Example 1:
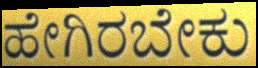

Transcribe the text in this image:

ಹೇಗಿರಬೇಕು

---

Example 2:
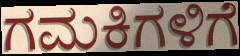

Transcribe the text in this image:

ಗಮಕಿಗಳಿಗೆ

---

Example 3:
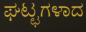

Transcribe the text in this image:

ಘಟ್ಟಗಳಾದ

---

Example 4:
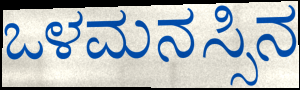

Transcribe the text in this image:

ಒಳಮನಸ್ಸಿನ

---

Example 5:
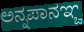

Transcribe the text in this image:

ಅನ್ನಪಾನಞ್ಚ